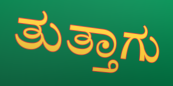
ತುತ್ತಾಗು